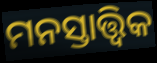
ମନସ୍ତାତ୍ତ୍ବିକ